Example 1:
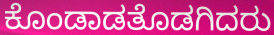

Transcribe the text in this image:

ಕೊಂಡಾಡತೊಡಗಿದರು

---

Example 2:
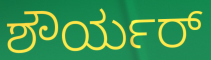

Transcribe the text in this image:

ಶೌರ್ಯರ್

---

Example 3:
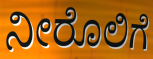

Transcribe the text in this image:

ನೀರೊಲಿಗೆ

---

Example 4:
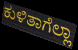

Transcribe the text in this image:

ಕುಳಿತಾಗೆಲ್ಲಾ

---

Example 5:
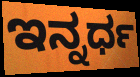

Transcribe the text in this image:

ಇನ್ನರ್ಧ